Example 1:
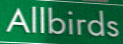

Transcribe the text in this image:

Allbirds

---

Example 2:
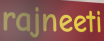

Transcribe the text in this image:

rajneeti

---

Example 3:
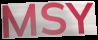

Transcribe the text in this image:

MSY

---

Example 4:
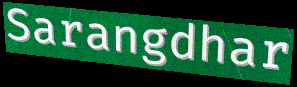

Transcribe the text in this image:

Sarangdhar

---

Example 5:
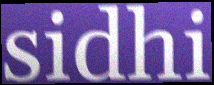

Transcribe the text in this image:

sidhi